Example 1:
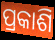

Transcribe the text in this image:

ପ୍ରକାଶି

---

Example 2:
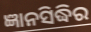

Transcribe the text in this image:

ଜ୍ଞାନସିଦ୍ଧିର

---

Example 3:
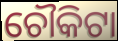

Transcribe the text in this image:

ଚୌକିଟା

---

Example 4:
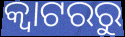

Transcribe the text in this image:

କ୍ୱାଟରରୁ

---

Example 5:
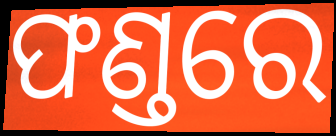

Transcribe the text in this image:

ଫଣ୍ଡରେ